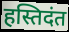
हस्तिदंत